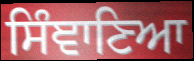
ਸਿੰਞਾਣਿਆ